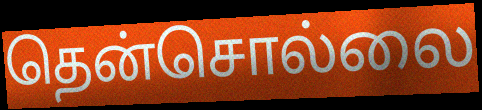
தென்சொல்லை